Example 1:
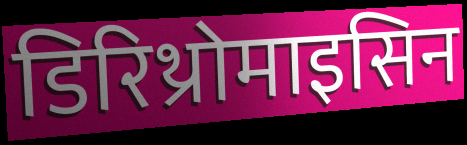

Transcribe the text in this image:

डिरिथ्रोमाइसिन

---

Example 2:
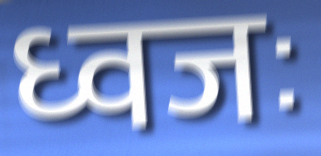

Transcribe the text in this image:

ध्वजः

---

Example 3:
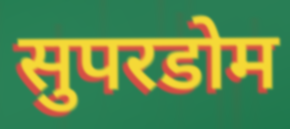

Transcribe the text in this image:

सुपरडोम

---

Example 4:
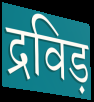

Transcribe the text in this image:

द्रविड़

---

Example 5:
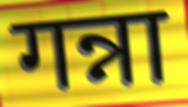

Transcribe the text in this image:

गन्ना